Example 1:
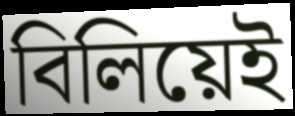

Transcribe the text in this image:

বিলিয়েই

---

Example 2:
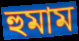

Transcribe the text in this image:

হুমাম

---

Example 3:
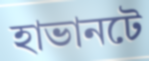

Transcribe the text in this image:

হাভানটে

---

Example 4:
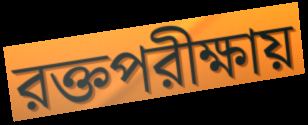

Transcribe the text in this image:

রক্তপরীক্ষায়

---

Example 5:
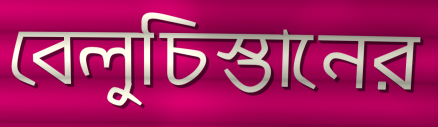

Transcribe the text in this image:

বেলুচিস্তানের